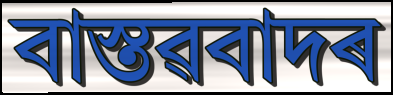
বাস্তৱবাদৰ